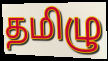
தமிழு